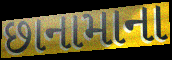
છાનામાના